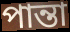
পান্তা